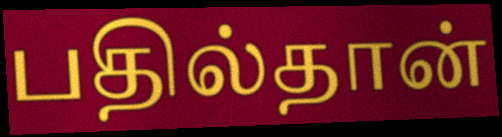
பதில்தான்